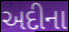
અદીના